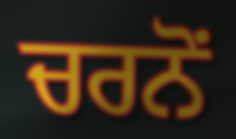
ਚਰਨੋਂ